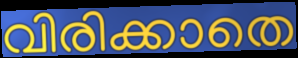
വിരിക്കാതെ